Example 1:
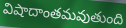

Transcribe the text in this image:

విషాదాంతమవుతుంది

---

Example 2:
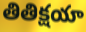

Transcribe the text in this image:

తితిక్షయా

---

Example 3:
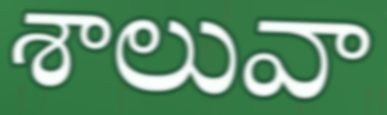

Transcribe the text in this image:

శాలువా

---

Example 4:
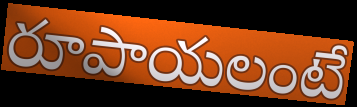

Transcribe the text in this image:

రూపాయలంటే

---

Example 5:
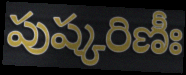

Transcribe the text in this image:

పుష్కరిణీః